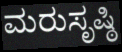
ಮರುಸೃಷ್ಠಿ